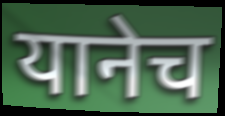
यानेच